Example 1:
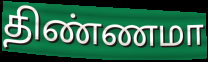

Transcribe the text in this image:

திண்ணமா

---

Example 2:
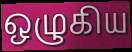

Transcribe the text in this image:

ஒழுகிய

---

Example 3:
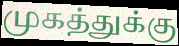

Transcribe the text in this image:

முகத்துக்கு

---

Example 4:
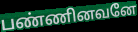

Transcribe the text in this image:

பண்ணினவனே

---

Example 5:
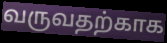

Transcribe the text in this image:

வருவதற்காக